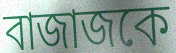
বাজাজকে